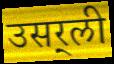
उसर्ली